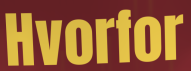
Hvorfor